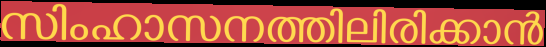
സിംഹാസനത്തിലിരിക്കാൻ